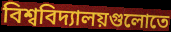
বিশ্ববিদ্যালয়গুলোতে